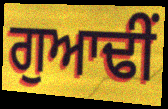
ਗੁਆਢੀਂ